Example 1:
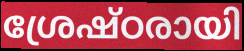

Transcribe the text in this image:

ശ്രേഷ്ഠരായി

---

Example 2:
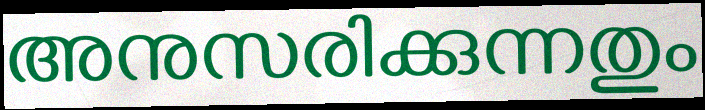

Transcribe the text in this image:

അനുസരിക്കുന്നതും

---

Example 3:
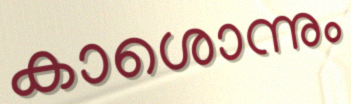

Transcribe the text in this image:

കാശൊന്നും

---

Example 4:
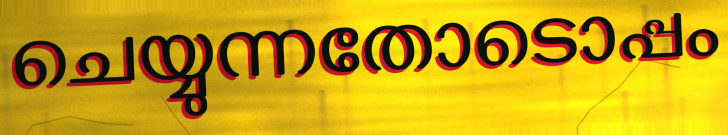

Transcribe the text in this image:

ചെയ്യുന്നതോടൊപ്പം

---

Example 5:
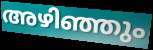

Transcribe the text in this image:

അഴിഞ്ഞും